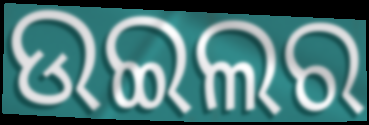
ଉଇଲର